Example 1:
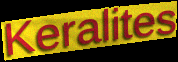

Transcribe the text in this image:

Keralites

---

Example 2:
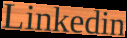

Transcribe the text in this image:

Linkedin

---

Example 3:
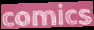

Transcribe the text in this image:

comics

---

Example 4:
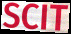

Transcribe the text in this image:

SCIT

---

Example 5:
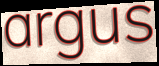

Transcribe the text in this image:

argus